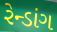
રેન્ડાંગ